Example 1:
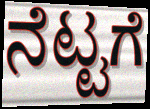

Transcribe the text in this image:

ನೆಟ್ಟಗೆ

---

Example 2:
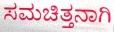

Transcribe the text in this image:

ಸಮಚಿತ್ತನಾಗಿ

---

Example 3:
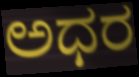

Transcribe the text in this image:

ಅಧರ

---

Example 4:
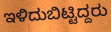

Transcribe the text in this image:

ಇಳಿದುಬಿಟ್ಟಿದ್ದರು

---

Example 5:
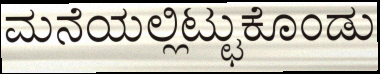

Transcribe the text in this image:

ಮನೆಯಲ್ಲಿಟ್ಟುಕೊಂಡು